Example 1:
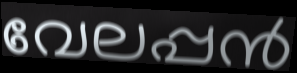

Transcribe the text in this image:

വേലപ്പൻ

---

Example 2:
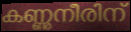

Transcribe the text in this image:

കണ്ണുനീരിന്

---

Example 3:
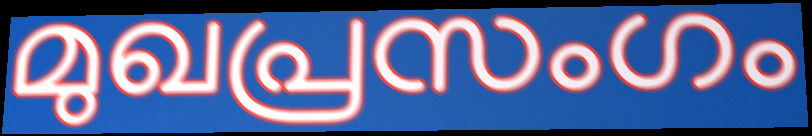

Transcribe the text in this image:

മുഖപ്രസംഗം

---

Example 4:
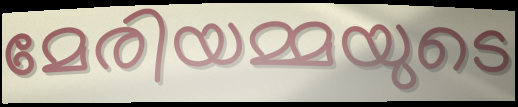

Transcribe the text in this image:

മേരിയമ്മയുടെ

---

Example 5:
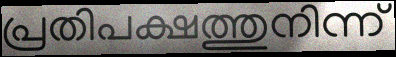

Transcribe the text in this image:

പ്രതിപക്ഷത്തുനിന്ന്